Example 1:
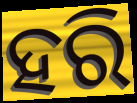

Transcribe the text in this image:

ହରି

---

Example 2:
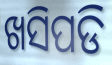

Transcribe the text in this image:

ଖସିପଡି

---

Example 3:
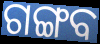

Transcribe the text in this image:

ଗଙ୍ଗବ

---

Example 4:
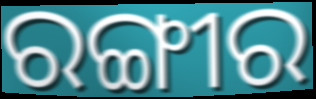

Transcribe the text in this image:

ରଙ୍ଗୀର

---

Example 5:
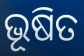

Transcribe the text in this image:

ଭୂଷିତ